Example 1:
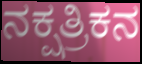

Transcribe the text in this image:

ನಕ್ಷತ್ರಿಕನ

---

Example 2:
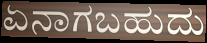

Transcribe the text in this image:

ಏನಾಗಬಹುದು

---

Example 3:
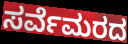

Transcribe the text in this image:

ಸರ್ವೆಮರದ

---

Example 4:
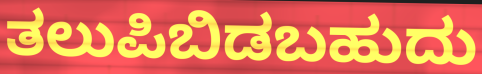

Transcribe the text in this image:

ತಲುಪಿಬಿಡಬಹುದು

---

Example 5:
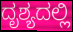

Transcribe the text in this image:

ದೃಶ್ಯದಲ್ಲಿ